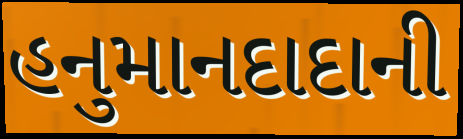
હનુમાનદાદાની